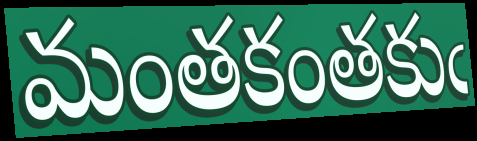
మంతకంతకుఁ